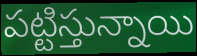
పట్టిస్తున్నాయి